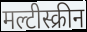
मल्टीस्क्रीन